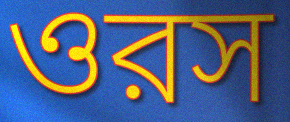
ওরস